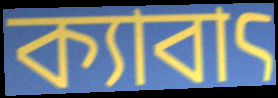
ক্যাবাৎ